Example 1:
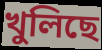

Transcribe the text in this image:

খুলিছে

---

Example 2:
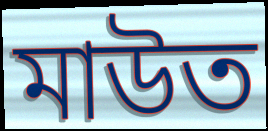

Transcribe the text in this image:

মাউত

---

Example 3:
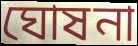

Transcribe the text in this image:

ঘোষনা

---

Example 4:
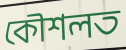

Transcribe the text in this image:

কৌশলত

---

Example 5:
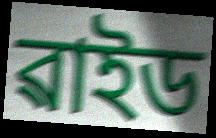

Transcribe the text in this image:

ৱাইড